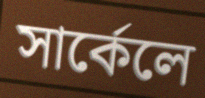
সার্কেলে